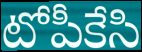
టోపీకేసి